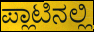
ಪ್ಲಾಟಿನಲ್ಲಿ